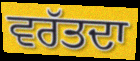
ਵਰੱਤਦਾ